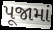
પૂજામાં